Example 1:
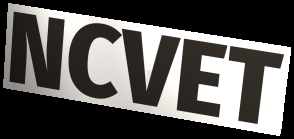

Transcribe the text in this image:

NCVET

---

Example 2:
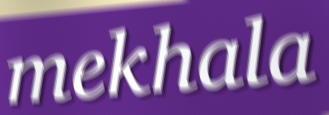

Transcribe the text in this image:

mekhala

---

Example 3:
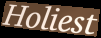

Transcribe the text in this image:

Holiest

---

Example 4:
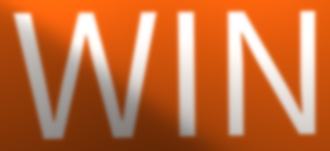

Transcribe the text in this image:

WIN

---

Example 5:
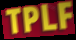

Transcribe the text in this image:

TPLF